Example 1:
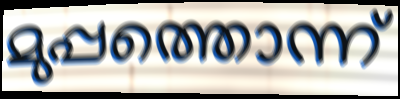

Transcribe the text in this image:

മുപ്പത്തൊന്ന്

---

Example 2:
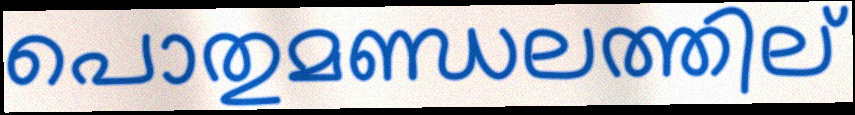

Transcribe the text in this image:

പൊതുമണ്ഡലത്തില്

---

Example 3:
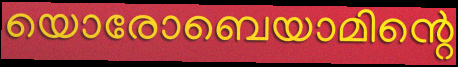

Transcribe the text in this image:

യൊരോബെയാമിന്റെ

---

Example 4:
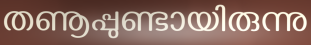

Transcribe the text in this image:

തണൂപ്പുണ്ടായിരുന്നു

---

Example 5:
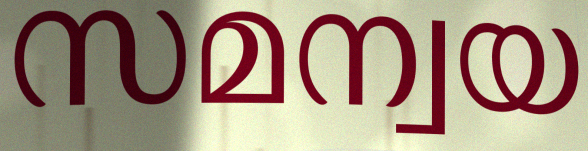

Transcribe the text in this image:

സമന്വയ